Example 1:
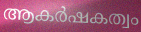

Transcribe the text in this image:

ആകർഷകത്വം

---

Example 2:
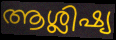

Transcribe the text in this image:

ആശ്ലിഷ്യ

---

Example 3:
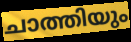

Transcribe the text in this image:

ചാത്തിയും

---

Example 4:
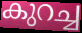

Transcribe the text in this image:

കുറച്ച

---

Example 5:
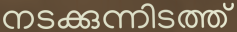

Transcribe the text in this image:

നടക്കുന്നിടത്ത്